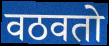
वठवतो